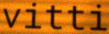
vitti